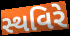
સ્થવિરે